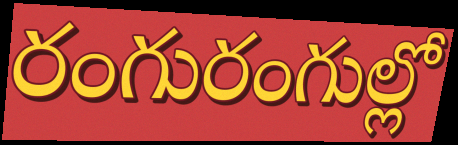
రంగురంగుల్లో